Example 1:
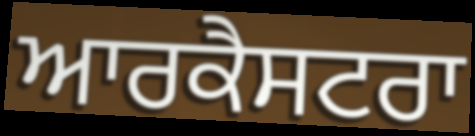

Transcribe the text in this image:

ਆਰਕੈਸਟਰਾ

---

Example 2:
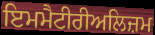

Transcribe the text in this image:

ਇਮਮੈਟੀਰੀਅਲਿਜ਼ਮ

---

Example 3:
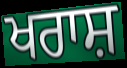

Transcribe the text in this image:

ਖਰਾਸ਼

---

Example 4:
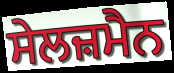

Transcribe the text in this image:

ਸੇਲਜ਼ਮੈਨ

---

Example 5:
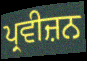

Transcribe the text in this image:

ਪ੍ਰਵੀਜ਼ਨ